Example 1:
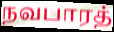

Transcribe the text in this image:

நவபாரத்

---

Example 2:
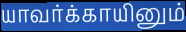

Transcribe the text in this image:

யாவர்க்காயினும்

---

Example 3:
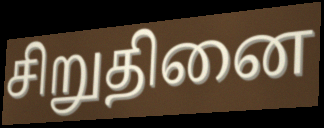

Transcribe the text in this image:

சிறுதினை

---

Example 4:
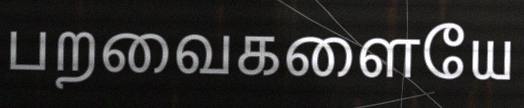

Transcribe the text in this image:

பறவைகளையே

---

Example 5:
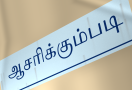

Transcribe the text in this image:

ஆசரிக்கும்படி